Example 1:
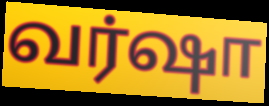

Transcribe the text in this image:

வர்ஷா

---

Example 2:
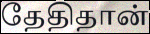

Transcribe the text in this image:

தேதிதான்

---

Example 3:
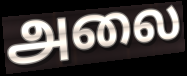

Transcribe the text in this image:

அலை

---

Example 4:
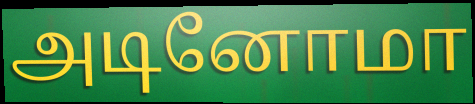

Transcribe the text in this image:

அடினோமா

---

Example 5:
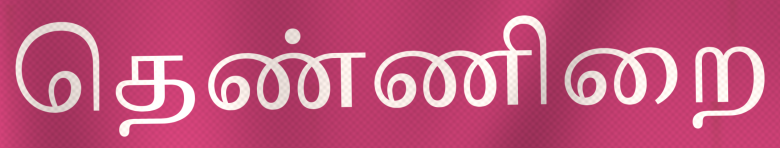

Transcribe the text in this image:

தெண்ணிறை